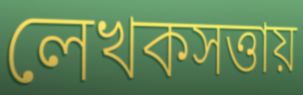
লেখকসত্তায়